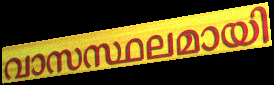
വാസസ്ഥലമായി